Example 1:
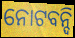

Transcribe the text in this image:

ନୋଟବନ୍ଦି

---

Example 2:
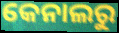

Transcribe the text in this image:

କେନାଲରୁ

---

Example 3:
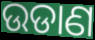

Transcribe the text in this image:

ଉଡାଣ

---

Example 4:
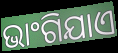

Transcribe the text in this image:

ଭାଂଗିଯାଏ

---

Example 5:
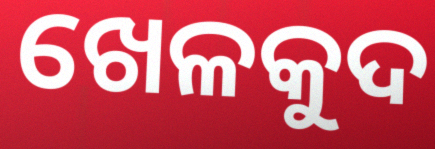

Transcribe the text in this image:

ଖେଳକୁଦ